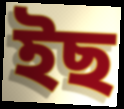
ইছ